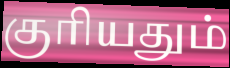
குரியதும்